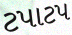
ટપાટપ